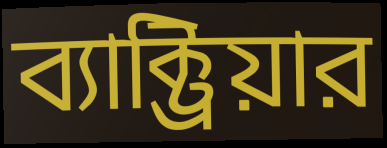
ব্যাক্ট্রিয়ার